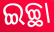
ଇଚ୍ଛା